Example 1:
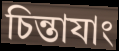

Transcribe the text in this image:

চিন্তাযাং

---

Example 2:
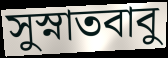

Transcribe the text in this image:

সুস্নাতবাবু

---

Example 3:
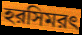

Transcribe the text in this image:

হরসিমরৎ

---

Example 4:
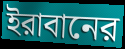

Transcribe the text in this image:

ইরাবানের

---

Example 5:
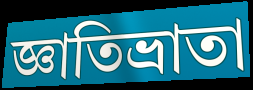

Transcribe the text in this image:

জ্ঞাতিভ্রাতা